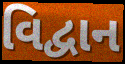
વિદ્વાન